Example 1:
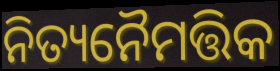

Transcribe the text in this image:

ନିତ୍ୟନୈମତ୍ତିକ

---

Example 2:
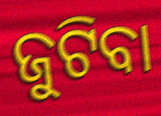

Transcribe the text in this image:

ଜୁଟିବା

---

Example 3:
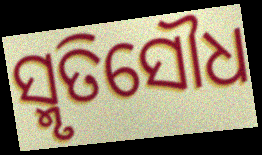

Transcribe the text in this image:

ସ୍ମୃତିସୌଧ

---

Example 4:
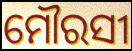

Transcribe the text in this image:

ମୌରସୀ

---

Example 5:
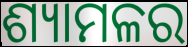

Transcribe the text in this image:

ଶ୍ୟାମଳର